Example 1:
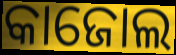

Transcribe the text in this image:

କାଜୋଲ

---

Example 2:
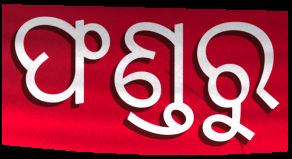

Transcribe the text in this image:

ଫଣ୍ଡରୁ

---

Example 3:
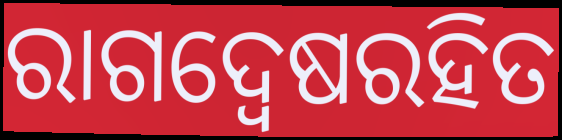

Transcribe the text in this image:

ରାଗଦ୍ୱେଷରହିତ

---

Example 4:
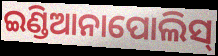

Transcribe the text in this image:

ଇଣ୍ଡିଆନାପୋଲିସ୍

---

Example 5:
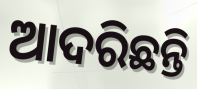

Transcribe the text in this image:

ଆଦରିଛନ୍ତି